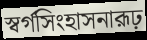
স্বর্গসিংহাসনারূঢ়